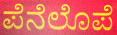
ಪೆನೆಲೊಪೆ